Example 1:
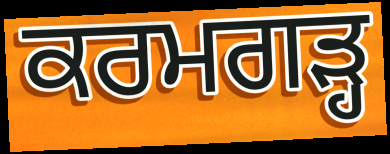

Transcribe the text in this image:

ਕਰਮਗੜ੍ਹ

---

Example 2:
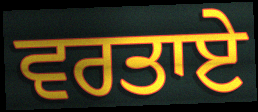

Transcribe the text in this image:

ਵਰਤਾਏ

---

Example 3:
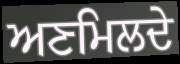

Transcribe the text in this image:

ਅਣਮਿਲਦੇ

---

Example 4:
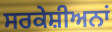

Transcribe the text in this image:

ਸਰਕੇਸ਼ੀਅਨਾਂ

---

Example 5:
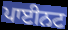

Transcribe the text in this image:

ਪਾਈਨਟ